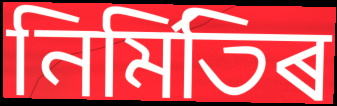
নিৰ্মিতিৰ